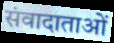
संवादाताओं